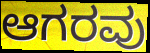
ಆಗರವು